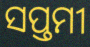
ସପ୍ତମୀ